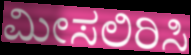
ಮೀಸಲಿರಿಸಿ